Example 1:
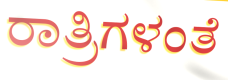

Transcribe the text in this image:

ರಾತ್ರಿಗಳಂತೆ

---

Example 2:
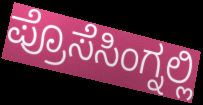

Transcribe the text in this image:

ಪ್ರೊಸೆಸಿಂಗ್ನಲ್ಲಿ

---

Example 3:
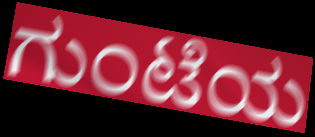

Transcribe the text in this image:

ಗುಂಟೆಯ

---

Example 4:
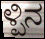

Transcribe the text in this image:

ಳ್ಪಿನ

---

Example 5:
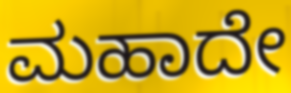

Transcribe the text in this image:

ಮಹಾದೇ